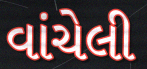
વાંચેલી